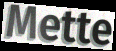
Mette